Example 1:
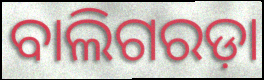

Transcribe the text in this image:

ବାଲିଗରଡ଼ା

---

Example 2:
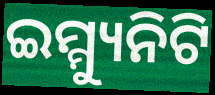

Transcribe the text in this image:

ଇମ୍ମ୍ୟୁନିଟି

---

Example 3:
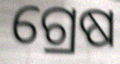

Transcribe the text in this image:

ଗ୍ରେଷ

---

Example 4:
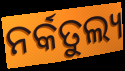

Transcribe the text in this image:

ନର୍କତୁଲ୍ୟ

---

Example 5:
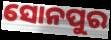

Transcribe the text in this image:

ସୋନପୁର